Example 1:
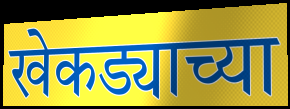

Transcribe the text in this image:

खेकड्याच्या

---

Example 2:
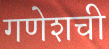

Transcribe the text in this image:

गणेशची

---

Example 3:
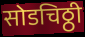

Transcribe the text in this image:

सोडचिठ्ठी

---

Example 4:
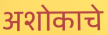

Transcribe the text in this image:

अशोकाचे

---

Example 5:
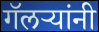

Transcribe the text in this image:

गॅलऱ्यांनी